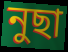
নুছা